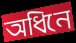
অধিনে